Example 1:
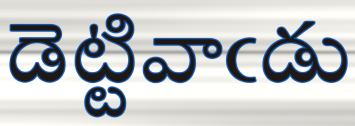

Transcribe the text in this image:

డెట్టివాఁడు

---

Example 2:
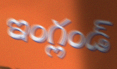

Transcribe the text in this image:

ఇంగ్లండ్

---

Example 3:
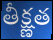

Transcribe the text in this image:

తీక్ష్ణత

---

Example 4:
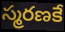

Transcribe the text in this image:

స్మరణకే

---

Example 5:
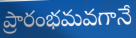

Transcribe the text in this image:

ప్రారంభమవగానే